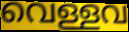
വെള്ളവ